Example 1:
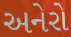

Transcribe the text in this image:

અનેરો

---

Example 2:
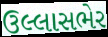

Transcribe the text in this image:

ઉલ્લાસભેર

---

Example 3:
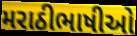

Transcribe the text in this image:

મરાઠીભાષીઓ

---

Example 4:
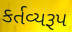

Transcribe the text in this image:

કર્તવ્યરૂપ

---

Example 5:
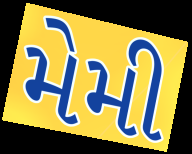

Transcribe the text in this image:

મેમી